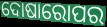
ଦୋଷାରୋପର